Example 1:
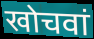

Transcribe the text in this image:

खोचवां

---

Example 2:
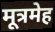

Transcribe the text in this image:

मूत्रमेह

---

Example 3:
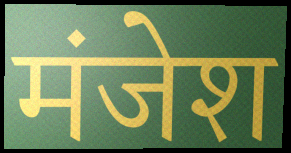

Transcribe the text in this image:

मंजेश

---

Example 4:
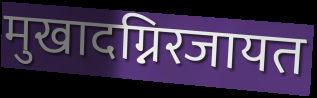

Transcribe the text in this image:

मुखादग्निरजायत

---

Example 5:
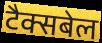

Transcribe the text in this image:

टैक्सबेल